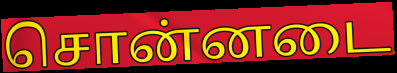
சொன்னடை